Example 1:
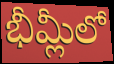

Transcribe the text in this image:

భీమ్లీలో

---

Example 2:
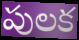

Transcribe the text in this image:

పులక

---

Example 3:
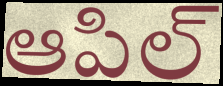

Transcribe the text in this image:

ఆపిల్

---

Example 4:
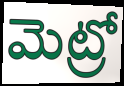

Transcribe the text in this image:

మెట్రో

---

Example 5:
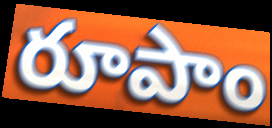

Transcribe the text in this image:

రూపాం